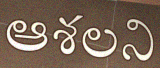
ఆశలని